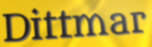
Dittmar